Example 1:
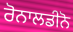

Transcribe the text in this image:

ਰੋਨਾਲਡੀਨੋ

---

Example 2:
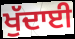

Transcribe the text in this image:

ਖੁੱਦਾਈ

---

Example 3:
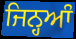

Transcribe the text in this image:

ਜਿਨ੍ਹਆੰ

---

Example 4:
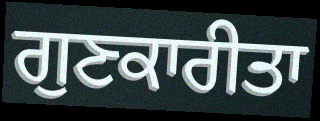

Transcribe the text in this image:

ਗੁਣਕਾਰੀਤਾ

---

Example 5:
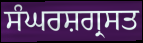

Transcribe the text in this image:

ਸੰਘਰਸ਼ਗ੍ਰਸਤ